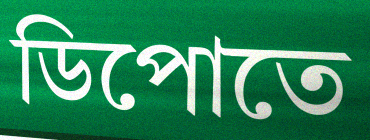
ডিপোতে